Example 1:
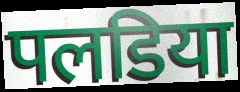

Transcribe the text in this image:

पलडिया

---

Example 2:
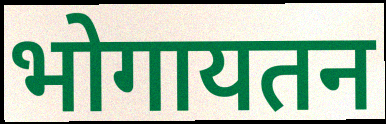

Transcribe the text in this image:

भोगायतन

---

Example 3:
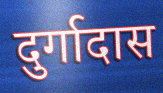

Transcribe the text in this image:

दुर्गादास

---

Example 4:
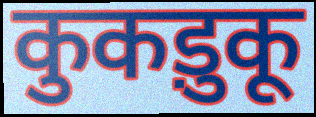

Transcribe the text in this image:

कुकड़ुकू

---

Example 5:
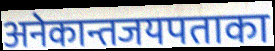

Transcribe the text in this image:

अनेकान्तजयपताका